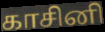
காசினி